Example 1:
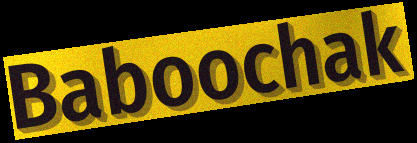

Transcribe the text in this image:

Baboochak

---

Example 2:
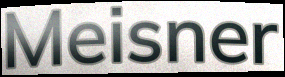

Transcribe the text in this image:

Meisner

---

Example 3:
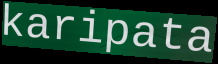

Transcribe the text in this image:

karipata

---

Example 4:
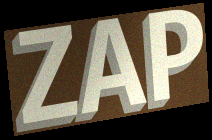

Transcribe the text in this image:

ZAP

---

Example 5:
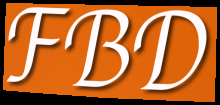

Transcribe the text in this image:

FBD